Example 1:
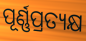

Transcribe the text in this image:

ପୂର୍ଣ୍ଣପ୍ରତ୍ୟକ୍ଷ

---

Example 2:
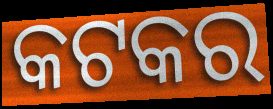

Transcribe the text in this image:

କଟକର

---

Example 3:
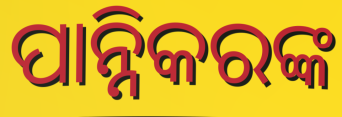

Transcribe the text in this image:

ପାନ୍ନିକରଙ୍କ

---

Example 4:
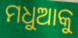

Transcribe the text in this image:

ମଧୁଆକୁ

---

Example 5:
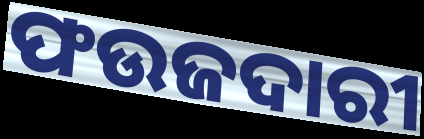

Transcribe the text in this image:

ଫଉଜଦାରୀ